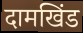
दामखिंड